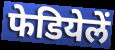
फेडियेलें